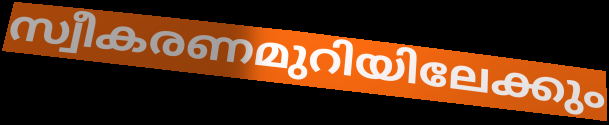
സ്വീകരണമുറിയിലേക്കും